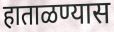
हाताळण्यास